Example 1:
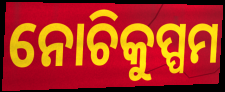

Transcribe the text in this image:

ନୋଚିକୁପ୍ପମ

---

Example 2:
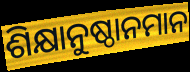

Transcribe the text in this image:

ଶିକ୍ଷାନୁଷ୍ଠାନମାନ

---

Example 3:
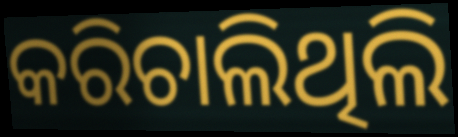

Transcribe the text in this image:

କରିଚାଲିଥିଲି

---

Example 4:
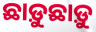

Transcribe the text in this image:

ଛାଡ଼ୁଛାଡ଼ୁ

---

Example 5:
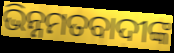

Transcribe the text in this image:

ଭିନ୍ନମତବାଦୀଙ୍କ